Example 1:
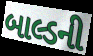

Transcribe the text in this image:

બાલ્ડની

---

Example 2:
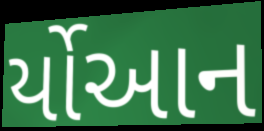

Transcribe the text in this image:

ર્યોઆન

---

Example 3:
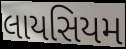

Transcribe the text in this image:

લાયસિયમ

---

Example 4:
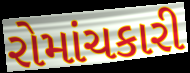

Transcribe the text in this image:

રોમાંચકારી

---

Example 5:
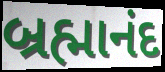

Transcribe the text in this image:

બ્રહ્માનંદ